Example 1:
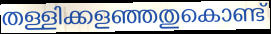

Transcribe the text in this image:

തള്ളിക്കളഞ്ഞതുകൊണ്ട്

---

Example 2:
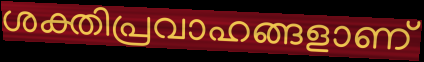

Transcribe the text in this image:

ശക്തിപ്രവാഹങ്ങളാണ്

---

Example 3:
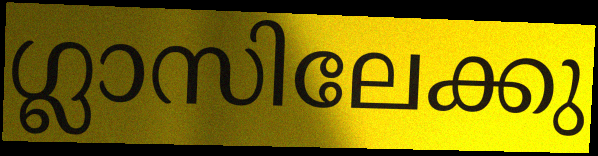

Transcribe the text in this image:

ഗ്ലാസിലേക്കു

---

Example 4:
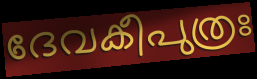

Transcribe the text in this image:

ദേവകീപുത്രഃ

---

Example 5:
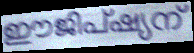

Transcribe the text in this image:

ഈജിപ്ഷ്യന്